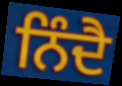
ਨਿੰਦੈ